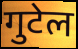
गुटेल